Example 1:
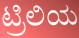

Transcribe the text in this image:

ಟ್ರಿಲಿಯ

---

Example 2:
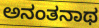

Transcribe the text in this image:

ಅನಂತನಾಥ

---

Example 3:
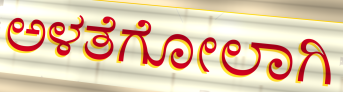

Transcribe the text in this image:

ಅಳತೆಗೋಲಾಗಿ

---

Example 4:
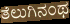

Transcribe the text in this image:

ತೆಲುಗಿನಂಥ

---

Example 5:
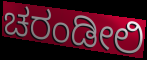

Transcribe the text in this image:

ಚರಂಡೀಲಿ